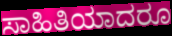
ಸಾಹಿತಿಯಾದರೂ